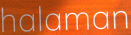
halaman